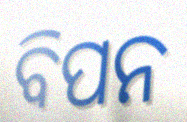
ବିପନ